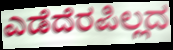
ಎಡೆದೆರಪಿಲ್ಲದ